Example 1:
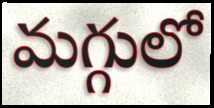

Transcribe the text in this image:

మగ్గులో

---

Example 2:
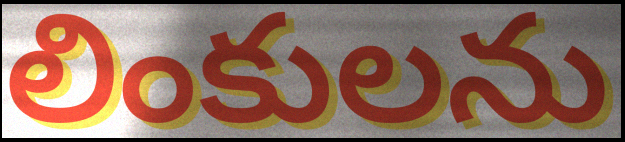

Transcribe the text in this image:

లింకులను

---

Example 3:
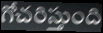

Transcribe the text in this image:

గోచరిస్తుంది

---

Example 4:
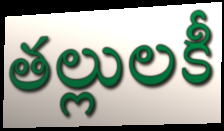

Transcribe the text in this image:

తల్లులకీ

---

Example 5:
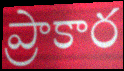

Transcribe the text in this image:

ప్రాకార